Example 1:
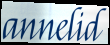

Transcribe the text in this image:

annelid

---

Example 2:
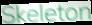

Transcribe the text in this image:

Skeleton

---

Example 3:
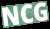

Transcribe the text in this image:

NCG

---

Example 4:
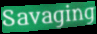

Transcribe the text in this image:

Savaging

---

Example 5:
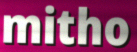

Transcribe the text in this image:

mitho